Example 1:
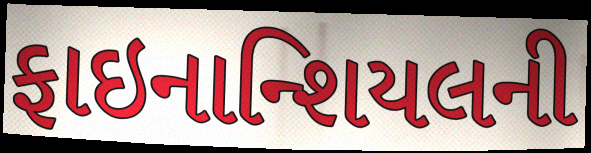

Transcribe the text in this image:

ફાઇનાન્શિયલની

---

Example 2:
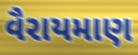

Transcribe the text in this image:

વૈરાયમાણ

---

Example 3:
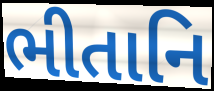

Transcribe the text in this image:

ભીતાનિ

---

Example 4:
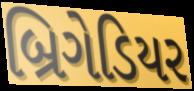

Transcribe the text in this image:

બ્રિગેડિયર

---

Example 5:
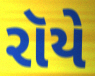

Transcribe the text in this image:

રૉયે